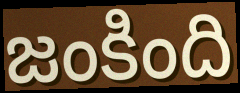
జంకింది